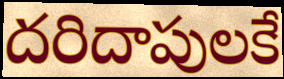
దరిదాపులకే